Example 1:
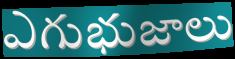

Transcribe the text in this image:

ఎగుభుజాలు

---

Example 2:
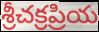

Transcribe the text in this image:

శ్రీచక్రప్రియ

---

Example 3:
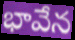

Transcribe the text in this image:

భావేన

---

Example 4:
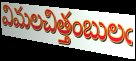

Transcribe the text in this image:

విమలచిత్తంబులఁ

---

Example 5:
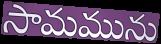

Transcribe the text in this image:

సామమును